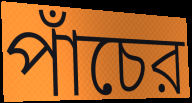
পাঁচের